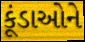
કૂંડાઓને